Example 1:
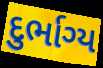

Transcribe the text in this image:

દુર્ભાગ્ય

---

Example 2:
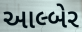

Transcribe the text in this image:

આલ્બેર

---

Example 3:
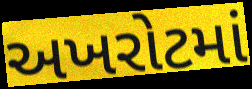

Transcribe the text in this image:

અખરોટમાં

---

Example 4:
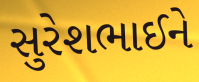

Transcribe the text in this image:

સુરેશભાઈને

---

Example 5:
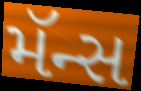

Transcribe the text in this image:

મૅન્સ